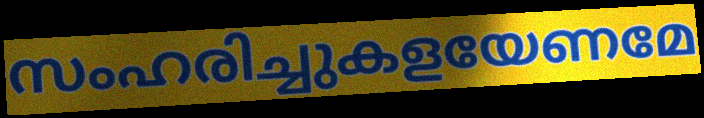
സംഹരിച്ചുകളയേണമേ